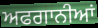
ਅਫਗਾਨੀਆਂ